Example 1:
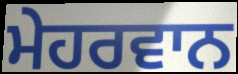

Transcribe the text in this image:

ਮੇਹਰਵਾਨ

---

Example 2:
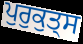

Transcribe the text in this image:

ਪੁਰੁਕੁਤ੍ਸ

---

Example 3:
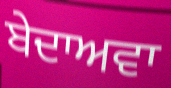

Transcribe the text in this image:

ਬੇਦਾਅਵਾ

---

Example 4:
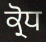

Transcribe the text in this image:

ਕ੍ਰੋਧ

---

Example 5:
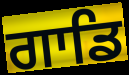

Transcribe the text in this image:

ਗਾਡਿ